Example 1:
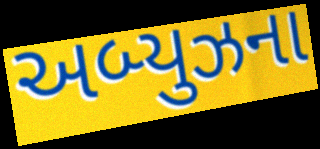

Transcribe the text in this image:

અબ્યુઝના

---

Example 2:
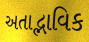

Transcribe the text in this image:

અતાદ્ભાવિક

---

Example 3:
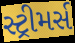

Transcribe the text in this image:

સ્ટ્રીમર્સ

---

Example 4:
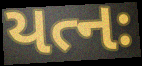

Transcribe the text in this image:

યત્નઃ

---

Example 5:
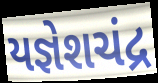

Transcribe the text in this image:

યજ્ઞેશચંદ્ર